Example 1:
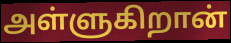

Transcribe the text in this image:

அள்ளுகிறான்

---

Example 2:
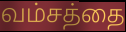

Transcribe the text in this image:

வம்சத்தை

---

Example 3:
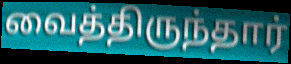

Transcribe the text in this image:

வைத்திருந்தார்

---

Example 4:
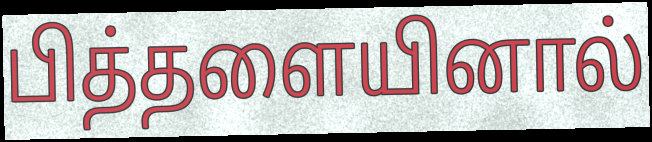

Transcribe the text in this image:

பித்தளையினால்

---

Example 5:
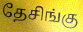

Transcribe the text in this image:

தேசிங்கு